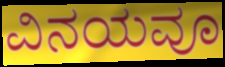
ವಿನಯವೂ